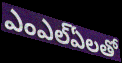
ఎంఎల్ఏలతో